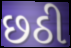
છઠી